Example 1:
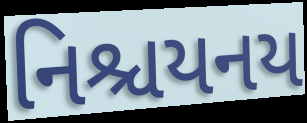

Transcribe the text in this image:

નિશ્ચયનય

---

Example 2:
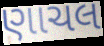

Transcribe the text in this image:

ણાચલ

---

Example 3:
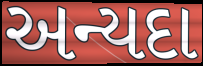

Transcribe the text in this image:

અન્યદા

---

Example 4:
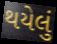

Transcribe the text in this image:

થયેલું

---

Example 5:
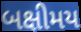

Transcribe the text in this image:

બક્ષીમય